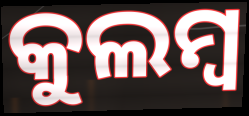
କୁଲମ୍ବ